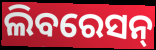
ଲିବରେସନ୍